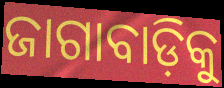
ଜାଗାବାଡ଼ିକୁ